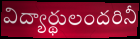
విద్యార్థులందరినీ